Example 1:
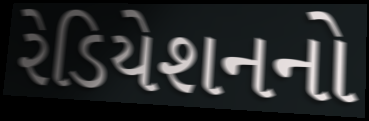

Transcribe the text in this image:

રેડિયેશનનો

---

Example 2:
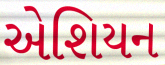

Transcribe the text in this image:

એશિયન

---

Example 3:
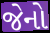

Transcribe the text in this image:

જેનો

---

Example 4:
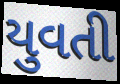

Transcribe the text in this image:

યુવતી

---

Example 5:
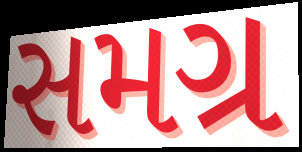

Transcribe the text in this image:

સમગ્ર